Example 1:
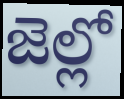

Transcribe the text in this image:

జెల్లో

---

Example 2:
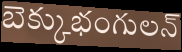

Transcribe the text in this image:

బెక్కుభంగులన్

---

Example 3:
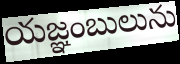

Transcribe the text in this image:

యజ్ఞంబులును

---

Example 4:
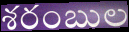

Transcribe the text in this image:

శరంబుల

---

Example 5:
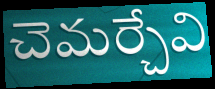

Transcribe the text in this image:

చెమర్చేవి